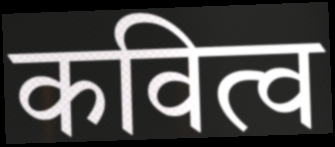
कवित्व